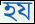
হয